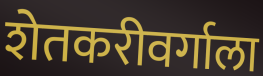
शेतकरीवर्गाला